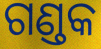
ଗଣ୍ଡକ